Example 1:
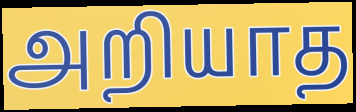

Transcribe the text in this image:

அறியாத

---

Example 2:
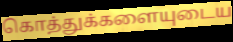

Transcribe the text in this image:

கொத்துக்களையுடைய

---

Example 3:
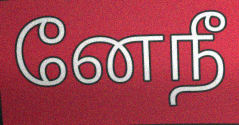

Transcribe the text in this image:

னேநீ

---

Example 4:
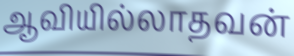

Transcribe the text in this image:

ஆவியில்லாதவன்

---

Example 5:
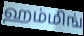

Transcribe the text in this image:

ஹம்மிங்